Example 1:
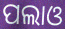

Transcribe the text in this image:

ପଲାଓ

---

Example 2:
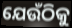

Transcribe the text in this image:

ଯେଉଁଠିକୁ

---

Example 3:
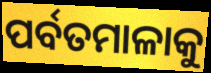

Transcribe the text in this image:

ପର୍ବତମାଳାକୁ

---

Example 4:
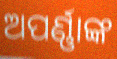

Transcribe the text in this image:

ଅପର୍ଣ୍ଣାଙ୍କ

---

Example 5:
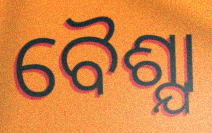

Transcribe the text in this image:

ବୈଶ୍ଯା